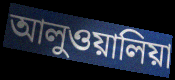
আলুওয়ালিয়া